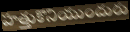
హత్తుకొనియుందురు